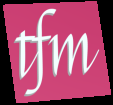
tfm